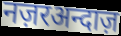
नज़रअन्दाज़